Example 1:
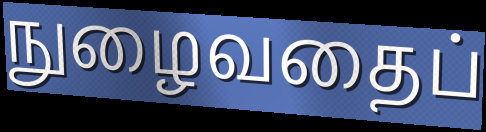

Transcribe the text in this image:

நுழைவதைப்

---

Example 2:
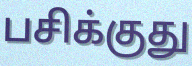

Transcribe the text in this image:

பசிக்குது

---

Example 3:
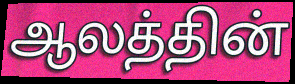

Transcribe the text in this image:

ஆலத்தின்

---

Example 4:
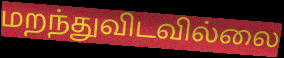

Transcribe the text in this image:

மறந்துவிடவில்லை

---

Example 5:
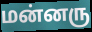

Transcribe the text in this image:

மன்னரு